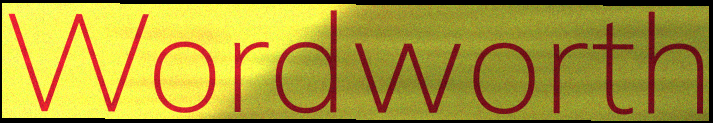
Wordworth